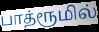
பாத்ரூமில்